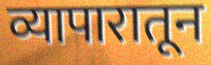
व्यापारातून